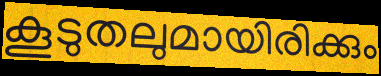
കൂടുതലുമായിരിക്കും